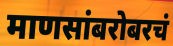
माणसांबरोबरचं